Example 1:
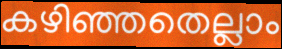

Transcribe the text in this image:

കഴിഞ്ഞതെല്ലാം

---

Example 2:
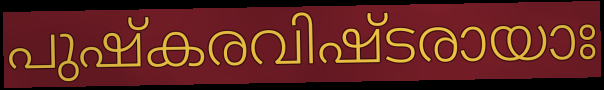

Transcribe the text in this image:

പുഷ്കരവിഷ്ടരായാഃ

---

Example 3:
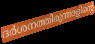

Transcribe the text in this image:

ദർശനത്തിരുന്നാളിന്റെ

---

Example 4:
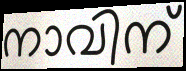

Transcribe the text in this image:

നാവിന്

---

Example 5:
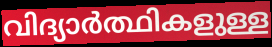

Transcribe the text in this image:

വിദ്യാർത്ഥികളുള്ള